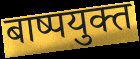
बाष्पयुक्त